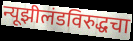
न्यूझीलंडविरुद्धचा